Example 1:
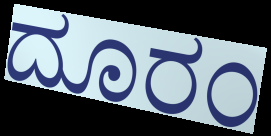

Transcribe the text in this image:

ದೂರಂ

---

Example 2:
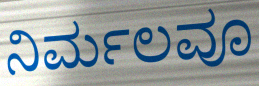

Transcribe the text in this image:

ನಿರ್ಮಲವೂ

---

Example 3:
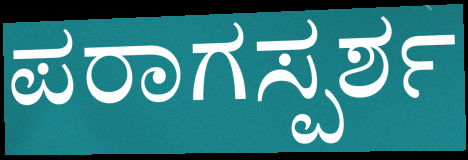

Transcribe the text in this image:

ಪರಾಗಸ್ಪರ್ಶ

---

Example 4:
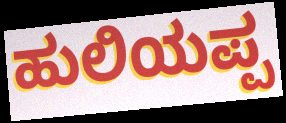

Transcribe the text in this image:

ಹುಲಿಯಪ್ಪ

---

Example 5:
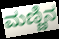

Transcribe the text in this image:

ಮಣ್ಣಿನ